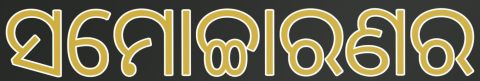
ସମୋଚ୍ଚାରଣର